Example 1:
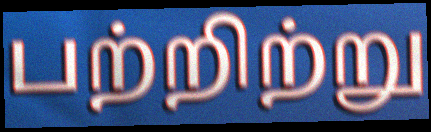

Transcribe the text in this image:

பற்றிற்று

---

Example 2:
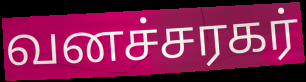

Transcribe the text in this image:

வனச்சரகர்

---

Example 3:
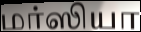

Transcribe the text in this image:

மர்ஸியா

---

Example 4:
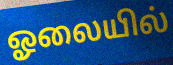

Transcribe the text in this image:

ஓலையில்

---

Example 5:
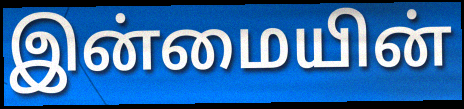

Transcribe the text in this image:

இன்மையின்